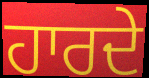
ਹਾਰਦੇ